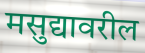
मसुद्यावरील